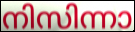
നിസിന്നാ